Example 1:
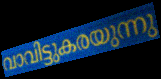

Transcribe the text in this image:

വാവിട്ടുകരയുന്നു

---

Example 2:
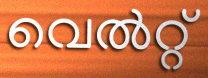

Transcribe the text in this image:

വെൽറ്റ്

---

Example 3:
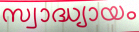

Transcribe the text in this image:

സ്വാദ്ധ്യായം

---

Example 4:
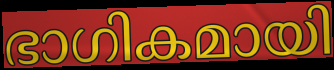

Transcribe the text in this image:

ഭാഗികമായി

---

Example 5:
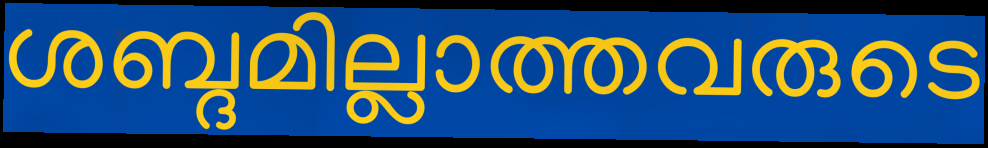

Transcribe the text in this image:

ശബ്ദമില്ലാത്തവരുടെ